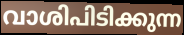
വാശിപിടിക്കുന്ന